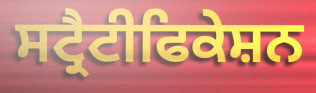
ਸਟ੍ਰੈਟੀਫਿਕੇਸ਼ਨ